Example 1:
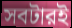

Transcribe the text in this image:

সবটারই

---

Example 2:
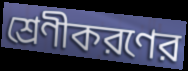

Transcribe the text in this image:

শ্রেণীকরণের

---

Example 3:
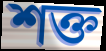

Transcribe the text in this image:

শক্ত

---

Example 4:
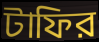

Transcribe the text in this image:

টাফির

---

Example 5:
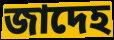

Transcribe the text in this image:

জাদেহ